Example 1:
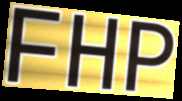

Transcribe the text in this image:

FHP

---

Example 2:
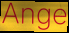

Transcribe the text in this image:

Ange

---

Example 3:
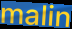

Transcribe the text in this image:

malin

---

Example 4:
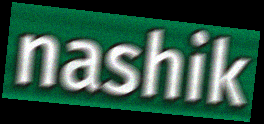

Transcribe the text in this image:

nashik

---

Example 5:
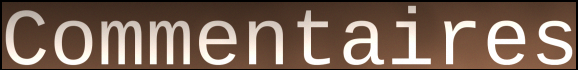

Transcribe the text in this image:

Commentaires